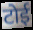
टोई